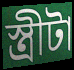
স্ত্রীটা